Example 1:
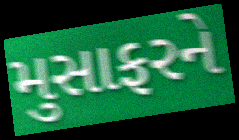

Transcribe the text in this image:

મુસાફરને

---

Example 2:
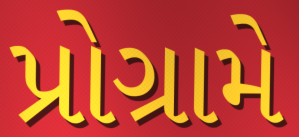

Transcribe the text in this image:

પ્રોગ્રામે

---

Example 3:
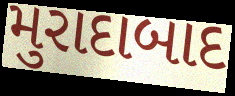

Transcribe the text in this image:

મુરાદાબાદ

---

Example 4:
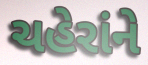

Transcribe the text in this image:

ચહેરાંને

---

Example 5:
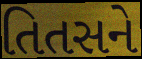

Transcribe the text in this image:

તિતસને